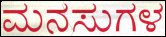
ಮನಸುಗಳ